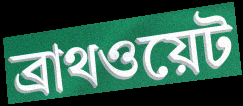
ব্রাথওয়েট